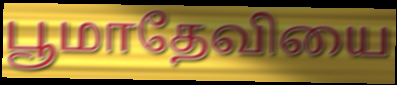
பூமாதேவியை